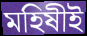
মহিষীই